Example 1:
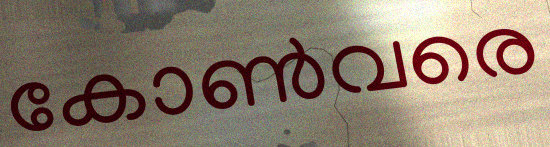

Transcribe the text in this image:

കോൺവരെ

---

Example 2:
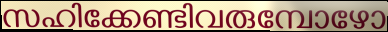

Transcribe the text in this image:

സഹിക്കേണ്ടിവരുമ്പോഴോ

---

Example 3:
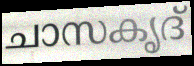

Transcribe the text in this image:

ചാസകൃദ്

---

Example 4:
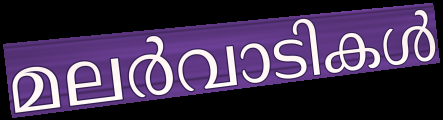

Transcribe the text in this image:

മലർവാടികൾ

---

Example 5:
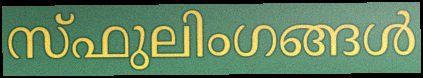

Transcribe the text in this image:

സ്ഫുലിംഗങ്ങൾ